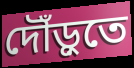
দৌঁড়ুতে